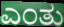
ಎಂತು